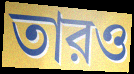
তারও